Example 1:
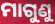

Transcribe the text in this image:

ମାଗୁଣୁ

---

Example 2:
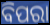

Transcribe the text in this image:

ବିପରା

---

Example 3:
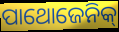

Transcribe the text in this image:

ପାଥୋଜେନିକ୍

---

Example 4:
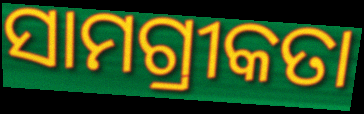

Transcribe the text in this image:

ସାମଗ୍ରୀକତା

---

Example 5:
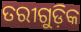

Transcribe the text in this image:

ତରୀଗୁଡ଼ିକ